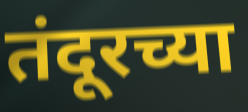
तंदूरच्या